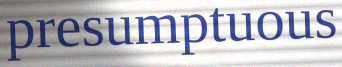
presumptuous